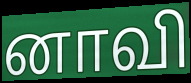
னாவி